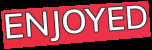
ENJOYED